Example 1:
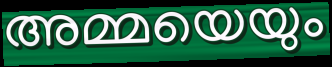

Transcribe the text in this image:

അമ്മയെയും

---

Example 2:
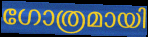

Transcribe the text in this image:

ഗോത്രമായി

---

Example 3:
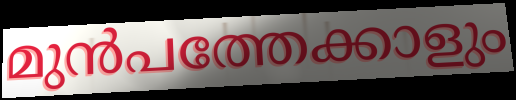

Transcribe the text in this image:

മുൻപത്തേക്കാളും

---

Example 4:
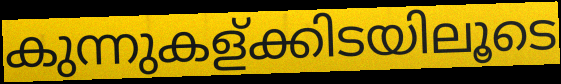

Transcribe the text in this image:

കുന്നുകള്ക്കിടയിലൂടെ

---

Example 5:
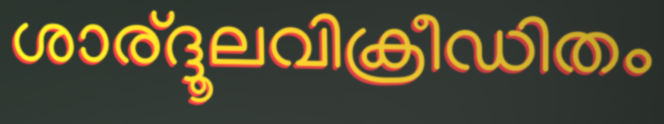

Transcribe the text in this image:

ശാര്ദ്ദൂലവിക്രീഡിതം